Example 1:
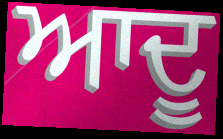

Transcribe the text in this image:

ਆਦੂ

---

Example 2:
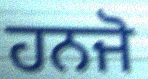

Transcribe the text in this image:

ਹਨਜੋ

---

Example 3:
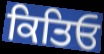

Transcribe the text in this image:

ਕਿਤਿਓ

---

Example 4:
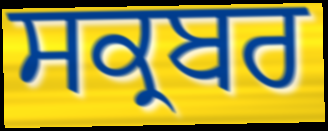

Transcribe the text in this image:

ਸਕ੍ਰਬਰ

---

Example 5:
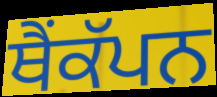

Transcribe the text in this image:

ਥੈਂਕੱਪਨ